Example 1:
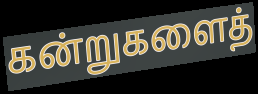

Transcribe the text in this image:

கன்றுகளைத்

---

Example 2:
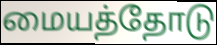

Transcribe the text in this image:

மையத்தோடு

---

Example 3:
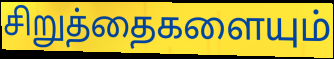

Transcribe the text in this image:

சிறுத்தைகளையும்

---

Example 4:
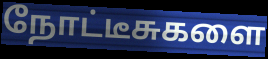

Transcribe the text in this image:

நோட்டீசுகளை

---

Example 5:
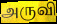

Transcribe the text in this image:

அருவி